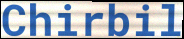
Chirbil